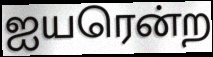
ஐயரென்ற